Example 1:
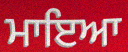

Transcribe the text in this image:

ਮਾਇਆ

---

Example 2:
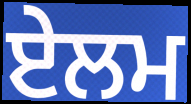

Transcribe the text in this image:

ਏਲਮ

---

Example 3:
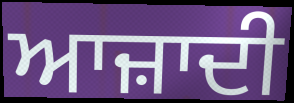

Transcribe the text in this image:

ਆਜ਼ਾਦੀ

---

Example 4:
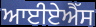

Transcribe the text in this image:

ਆਈਏਐੱਸ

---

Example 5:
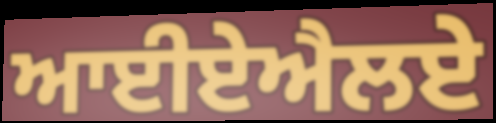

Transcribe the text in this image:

ਆਈਏਐਲਏ